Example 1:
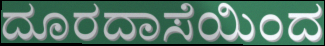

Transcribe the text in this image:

ದೂರದಾಸೆಯಿಂದ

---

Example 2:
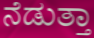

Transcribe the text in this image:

ನೆಡುತ್ತಾ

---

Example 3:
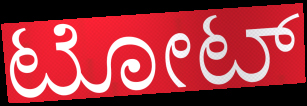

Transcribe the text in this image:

ಟೋಟ್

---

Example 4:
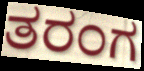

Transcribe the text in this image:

ತರಂಗ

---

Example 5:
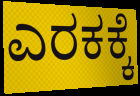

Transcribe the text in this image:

ಎರಕಕ್ಕೆ